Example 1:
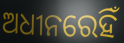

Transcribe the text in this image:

ଅଧୀନରେହିଁ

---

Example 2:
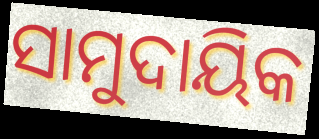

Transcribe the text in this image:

ସାମୁଦାୟିକ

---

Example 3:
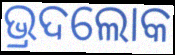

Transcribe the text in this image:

ଭ୍ରଦଲୋକ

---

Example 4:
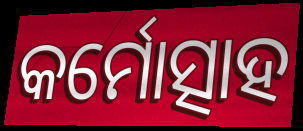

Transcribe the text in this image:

କର୍ମୋତ୍ସାହ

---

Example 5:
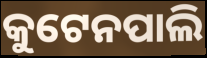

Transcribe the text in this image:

କୁଟେନପାଲି